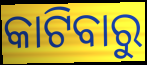
କାଟିବାରୁ